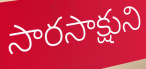
సారసాక్షుని